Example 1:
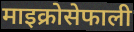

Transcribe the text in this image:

माइक्रोसेफाली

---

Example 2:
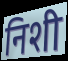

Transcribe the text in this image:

निशी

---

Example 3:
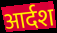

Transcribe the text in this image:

आर्दश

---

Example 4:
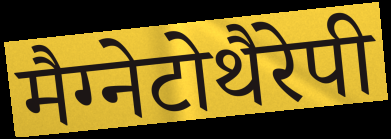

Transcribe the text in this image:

मैग्नेटोथैरेपी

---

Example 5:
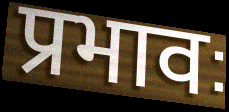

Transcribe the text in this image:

प्रभावः